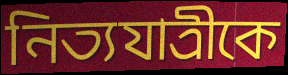
নিত্যযাত্রীকে